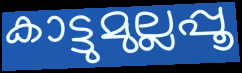
കാട്ടുമുല്ലപ്പൂ